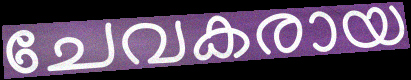
ചേവകരായ